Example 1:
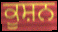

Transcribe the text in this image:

ਕੂਸ਼ਨ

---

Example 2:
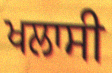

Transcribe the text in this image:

ਖਲਾਸੀ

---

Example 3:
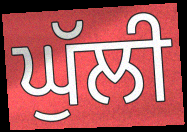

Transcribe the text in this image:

ਘੁੱਲੀ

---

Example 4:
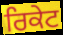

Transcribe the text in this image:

ਰਿਕੇਟ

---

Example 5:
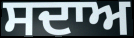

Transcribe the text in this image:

ਸਦਾਅ